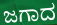
ಜಗಾದ